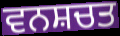
ਵਨਸ਼ਚਤ